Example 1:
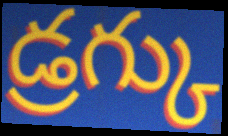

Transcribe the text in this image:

డ్రగ్కు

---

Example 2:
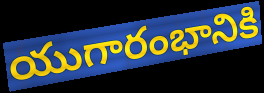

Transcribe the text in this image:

యుగారంభానికి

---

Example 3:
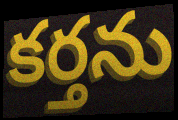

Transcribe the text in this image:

కర్తను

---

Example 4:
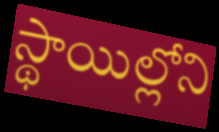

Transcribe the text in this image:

స్థాయిల్లోని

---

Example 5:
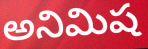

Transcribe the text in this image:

అనిమిష